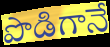
పొడిగానే